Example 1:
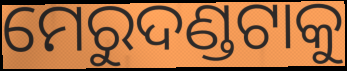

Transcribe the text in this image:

ମେରୁଦଣ୍ଡଟାକୁ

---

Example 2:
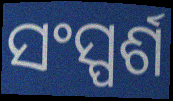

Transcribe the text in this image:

ସଂସ୍ପର୍ଶ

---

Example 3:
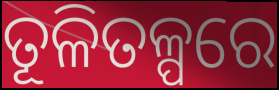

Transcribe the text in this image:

ତୂଳିତଳ୍ପରେ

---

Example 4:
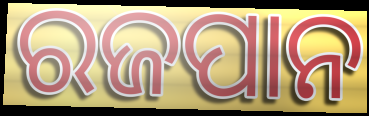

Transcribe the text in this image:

ରଜପାନ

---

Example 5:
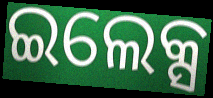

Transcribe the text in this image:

ଇଲେକ୍ସ